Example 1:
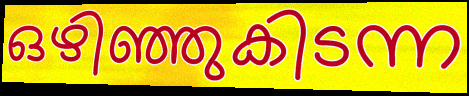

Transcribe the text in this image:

ഒഴിഞ്ഞുകിടന്ന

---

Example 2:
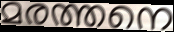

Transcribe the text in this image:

മരത്തനെ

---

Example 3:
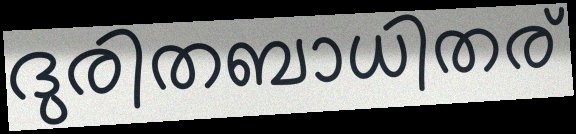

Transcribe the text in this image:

ദുരിതബാധിതര്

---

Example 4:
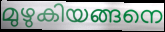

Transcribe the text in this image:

മുഴുകിയങ്ങനെ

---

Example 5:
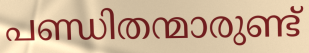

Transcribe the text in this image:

പണ്ഡിതന്മാരുണ്ട്